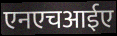
एनएचआईए